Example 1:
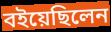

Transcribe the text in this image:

বইয়েছিলেন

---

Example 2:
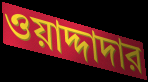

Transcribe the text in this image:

ওয়াদ্দাদার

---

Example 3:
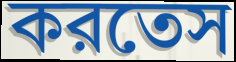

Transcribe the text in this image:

করতেস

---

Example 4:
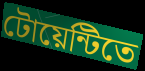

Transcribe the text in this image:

টোয়েন্টিতে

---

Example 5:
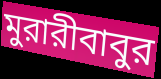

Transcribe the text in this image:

মুরারীবাবুর